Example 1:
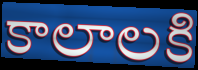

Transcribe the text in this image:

కాలాలకి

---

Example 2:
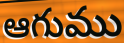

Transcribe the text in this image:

ఆగుము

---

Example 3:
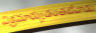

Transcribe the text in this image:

విక్రమార్కుడంతటివాడు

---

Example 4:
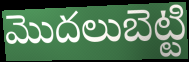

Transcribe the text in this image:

మొదలుబెట్టి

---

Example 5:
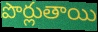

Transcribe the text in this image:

పొర్లుతాయి